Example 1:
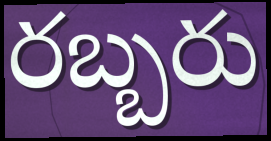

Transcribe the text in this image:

రబ్బరు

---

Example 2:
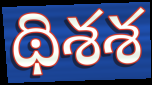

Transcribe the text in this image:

థిశశ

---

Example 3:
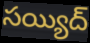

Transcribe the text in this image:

సయ్యిద్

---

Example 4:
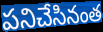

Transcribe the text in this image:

పనిచేసినంత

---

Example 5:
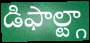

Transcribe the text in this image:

డిఫాల్ట్గా